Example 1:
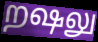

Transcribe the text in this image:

றஷலு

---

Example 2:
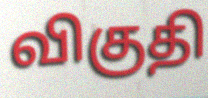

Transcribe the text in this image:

விகுதி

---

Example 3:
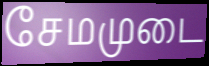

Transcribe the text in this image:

சேமமுடை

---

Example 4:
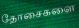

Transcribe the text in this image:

தோசைகளை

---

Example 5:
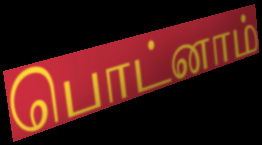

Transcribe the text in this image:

பொட்னாம்